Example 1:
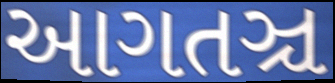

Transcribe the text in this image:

આગતઞ્ચ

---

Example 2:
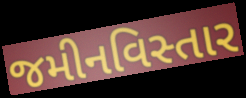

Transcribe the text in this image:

જમીનવિસ્તાર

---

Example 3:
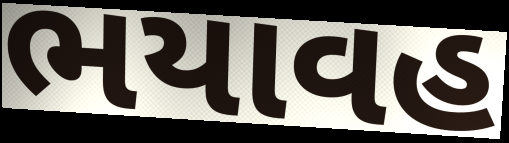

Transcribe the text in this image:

ભયાવહ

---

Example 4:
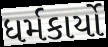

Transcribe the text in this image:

ધર્મકાર્યો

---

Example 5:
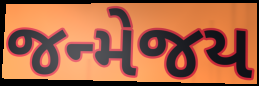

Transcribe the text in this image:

જન્મેજય